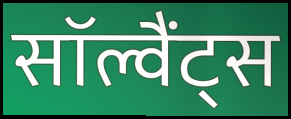
सॉल्वैंट्स